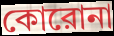
কোরোনা